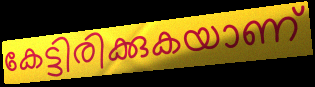
കേട്ടിരിക്കുകയാണ്